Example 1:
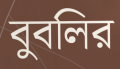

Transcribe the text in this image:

বুবলির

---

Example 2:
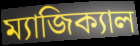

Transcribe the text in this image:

ম্যাজিক্যাল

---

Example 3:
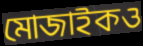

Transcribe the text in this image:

মোজাইকও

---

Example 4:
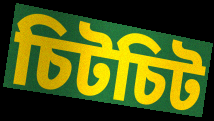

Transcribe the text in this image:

চিটচিট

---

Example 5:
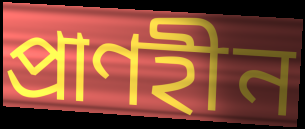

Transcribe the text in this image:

প্রাণহীন